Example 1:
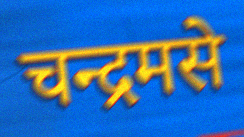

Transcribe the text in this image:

चन्द्रमसे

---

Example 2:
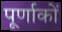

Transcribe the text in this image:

पूर्णाकों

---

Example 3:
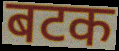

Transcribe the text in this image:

बटक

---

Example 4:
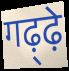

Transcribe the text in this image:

गढ़्ढ़े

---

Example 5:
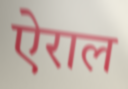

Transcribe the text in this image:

ऐराल